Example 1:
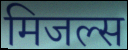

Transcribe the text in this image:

मिजल्स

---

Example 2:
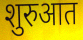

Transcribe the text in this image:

शुरुआत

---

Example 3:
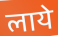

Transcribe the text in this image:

लाये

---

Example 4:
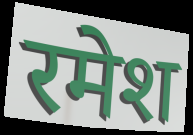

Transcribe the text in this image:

रमेश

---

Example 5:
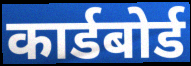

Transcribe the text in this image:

कार्डबोर्ड